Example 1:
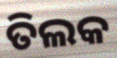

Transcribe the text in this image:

ତିଲକ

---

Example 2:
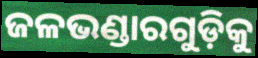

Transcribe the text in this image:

ଜଳଭଣ୍ଡାରଗୁଡ଼ିକୁ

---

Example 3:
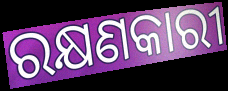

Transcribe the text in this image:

ରକ୍ଷଣକାରୀ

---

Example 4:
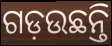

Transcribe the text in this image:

ଗଡ଼ଉଛନ୍ତି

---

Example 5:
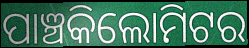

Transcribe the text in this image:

ପାଞ୍ଚକିଲୋମିଟର